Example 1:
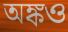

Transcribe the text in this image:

অঙ্কও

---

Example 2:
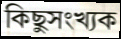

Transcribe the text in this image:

কিছুসংখ্যক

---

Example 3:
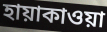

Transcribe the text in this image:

হায়াকাওয়া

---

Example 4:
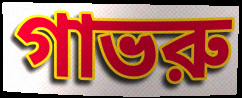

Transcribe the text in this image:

গাভরু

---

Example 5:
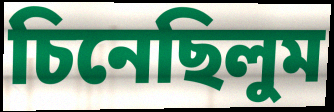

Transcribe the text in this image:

চিনেছিলুম